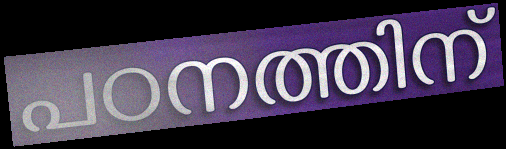
പഠനത്തിന്